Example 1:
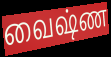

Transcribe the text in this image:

வைஷ்ண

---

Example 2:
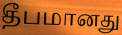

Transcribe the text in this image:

தீபமானது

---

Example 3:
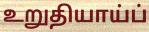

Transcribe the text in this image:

உறுதியாய்ப்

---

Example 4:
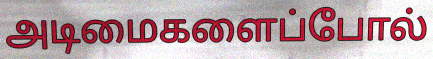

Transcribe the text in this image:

அடிமைகளைப்போல்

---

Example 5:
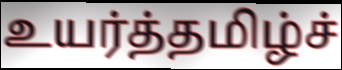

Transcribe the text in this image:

உயர்த்தமிழ்ச்